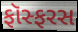
ફૉસ્ફરસ